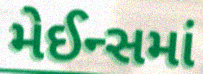
મેઈન્સમાં